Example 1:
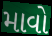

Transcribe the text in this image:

માવો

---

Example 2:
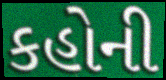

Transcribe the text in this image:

કહોની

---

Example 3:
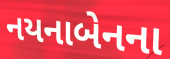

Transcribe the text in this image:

નયનાબેનના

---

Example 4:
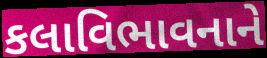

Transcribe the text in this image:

કલાવિભાવનાને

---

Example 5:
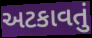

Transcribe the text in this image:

અટકાવતું